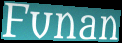
Funan